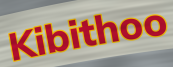
Kibithoo